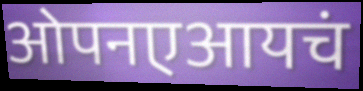
ओपनएआयचं